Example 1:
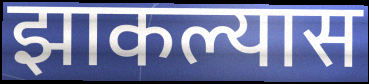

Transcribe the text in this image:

झाकल्यास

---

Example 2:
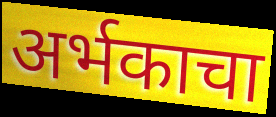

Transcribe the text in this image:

अर्भकाचा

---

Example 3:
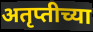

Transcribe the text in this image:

अतृप्तीच्या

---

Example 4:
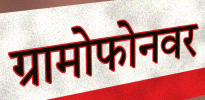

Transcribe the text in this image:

ग्रामोफोनवर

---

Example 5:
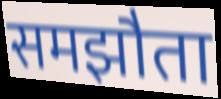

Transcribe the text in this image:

समझौता